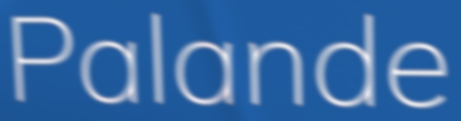
Palande